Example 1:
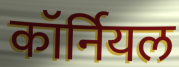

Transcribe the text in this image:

कॉर्नियल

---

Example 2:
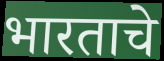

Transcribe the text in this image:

भारताचे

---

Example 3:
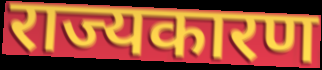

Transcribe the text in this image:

राज्यकारण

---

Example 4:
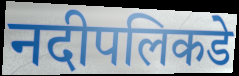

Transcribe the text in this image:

नदीपलिकडे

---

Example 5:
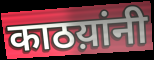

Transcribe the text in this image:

काठय़ांनी